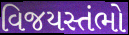
વિજયસ્તંભો